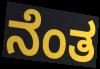
ನೆಂತ